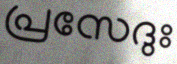
പ്രസേദുഃ